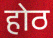
होठ